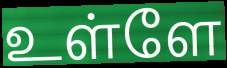
உள்ளே